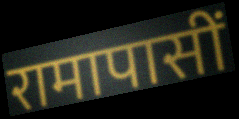
रामापासीं